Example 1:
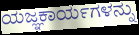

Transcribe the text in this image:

ಯಜ್ಞಕಾರ್ಯಗಳನ್ನು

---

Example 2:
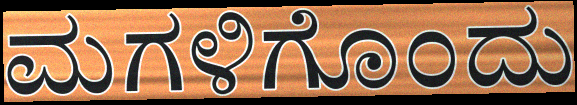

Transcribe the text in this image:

ಮಗಳಿಗೊಂದು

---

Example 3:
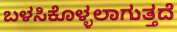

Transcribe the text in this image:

ಬಳಸಿಕೊಳ್ಳಲಾಗುತ್ತದೆ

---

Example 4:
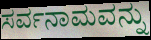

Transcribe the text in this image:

ಸರ್ವನಾಮವನ್ನು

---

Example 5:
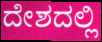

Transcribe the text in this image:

ದೇಶದಲ್ಲಿ